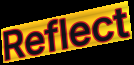
Reflect